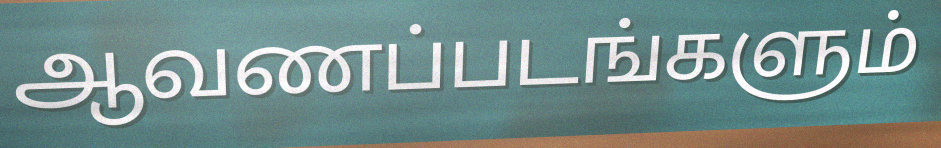
ஆவணப்படங்களும்